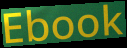
Ebook